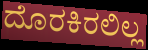
ದೊರಕಿರಲಿಲ್ಲ